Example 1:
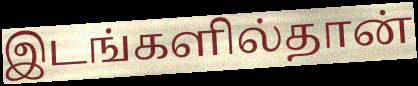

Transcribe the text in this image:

இடங்களில்தான்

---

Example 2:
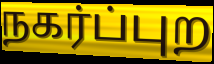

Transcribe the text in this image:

நகர்ப்புற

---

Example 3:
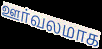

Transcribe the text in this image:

ஊர்வலமாக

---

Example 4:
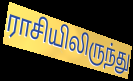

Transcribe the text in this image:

ராசியிலிருந்து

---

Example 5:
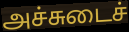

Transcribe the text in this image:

அச்சுடைச்